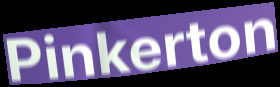
Pinkerton